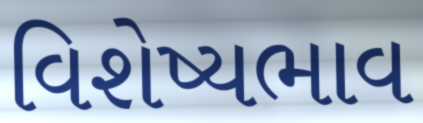
વિશેષ્યભાવ